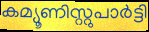
കമ്യൂണിസ്റ്റുപാർട്ടി